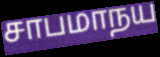
சாபமாநய